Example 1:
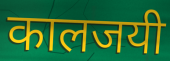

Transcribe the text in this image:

कालजयी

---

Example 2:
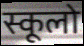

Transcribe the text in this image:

स्कूलो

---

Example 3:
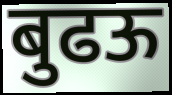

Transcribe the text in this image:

बुढऊ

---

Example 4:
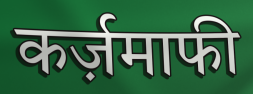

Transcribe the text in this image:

कर्ज़माफी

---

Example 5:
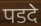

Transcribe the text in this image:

पडदे